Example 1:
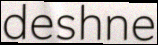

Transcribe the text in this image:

deshne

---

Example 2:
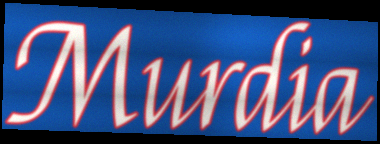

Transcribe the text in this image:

Murdia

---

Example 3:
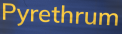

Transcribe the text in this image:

Pyrethrum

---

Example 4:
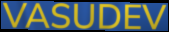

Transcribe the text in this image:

VASUDEV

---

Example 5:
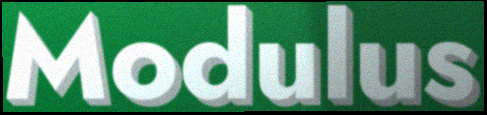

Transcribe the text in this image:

Modulus